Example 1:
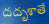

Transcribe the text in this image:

దదృశాతే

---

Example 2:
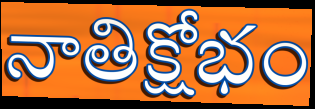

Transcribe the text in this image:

నాతిక్షోభం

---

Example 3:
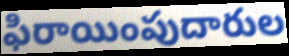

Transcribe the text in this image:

ఫిరాయింపుదారుల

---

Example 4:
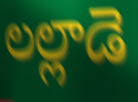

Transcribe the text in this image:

లల్లాడె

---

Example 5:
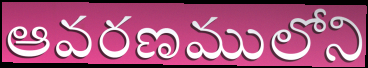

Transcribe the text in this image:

ఆవరణములోని